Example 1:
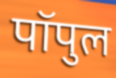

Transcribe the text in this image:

पॉपुल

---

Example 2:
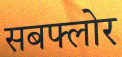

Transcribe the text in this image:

सबफ्लोर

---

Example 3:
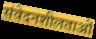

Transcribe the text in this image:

संवेदनशीलताओं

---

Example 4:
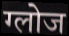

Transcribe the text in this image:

ग्लोज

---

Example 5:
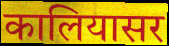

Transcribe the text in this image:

कालियासर